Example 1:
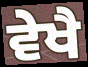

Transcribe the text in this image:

ਵੇਖੈ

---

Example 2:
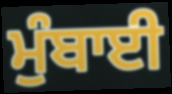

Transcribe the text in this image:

ਮੁੰਬਾਈ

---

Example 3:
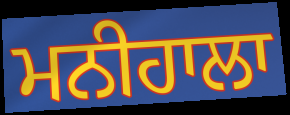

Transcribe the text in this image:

ਮਨੀਹਾਲਾ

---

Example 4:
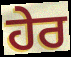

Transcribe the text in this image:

ਹੇਰ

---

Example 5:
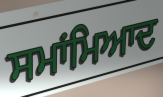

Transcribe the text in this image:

ਸਮਾਂਮਿਆਦ